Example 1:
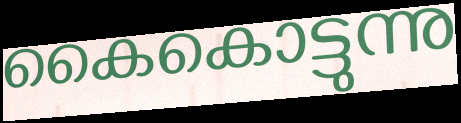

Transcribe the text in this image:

കൈകൊട്ടുന്നു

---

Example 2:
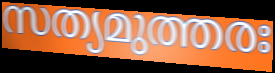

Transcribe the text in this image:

സത്യമുത്തരഃ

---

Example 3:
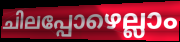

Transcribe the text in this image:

ചിലപ്പോഴെല്ലാം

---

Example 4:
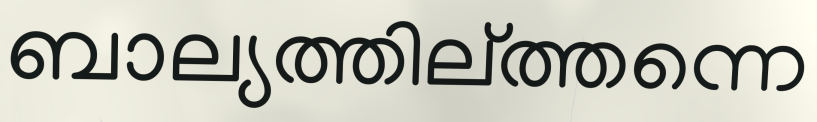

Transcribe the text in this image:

ബാല്യത്തില്ത്തന്നെ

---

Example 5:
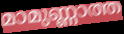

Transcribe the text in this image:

മാമുണ്ണാത്ത